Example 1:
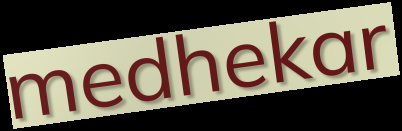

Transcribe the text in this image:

medhekar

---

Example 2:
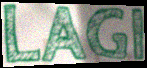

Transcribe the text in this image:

LAGI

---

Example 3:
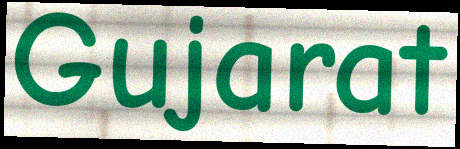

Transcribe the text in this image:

Gujarat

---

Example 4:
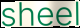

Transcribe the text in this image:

sheel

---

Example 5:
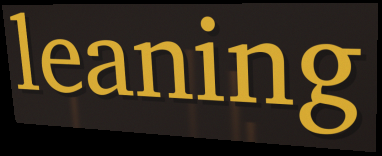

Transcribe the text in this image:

leaning